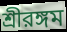
শ্রীরঙ্গম